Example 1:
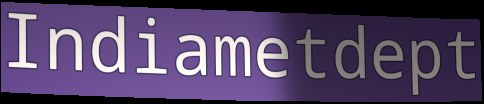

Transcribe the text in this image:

Indiametdept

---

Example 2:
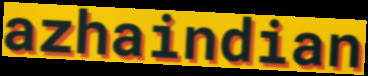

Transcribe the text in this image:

azhaindian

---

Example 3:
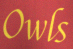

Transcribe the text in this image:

Owls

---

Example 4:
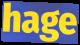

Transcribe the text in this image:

hage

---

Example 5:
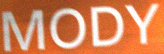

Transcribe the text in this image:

MODY